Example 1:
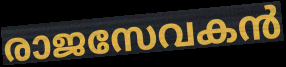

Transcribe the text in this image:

രാജസേവകൻ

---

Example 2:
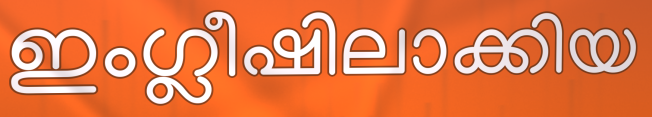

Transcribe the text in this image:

ഇംഗ്ലീഷിലാക്കിയ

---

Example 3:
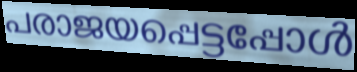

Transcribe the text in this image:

പരാജയപ്പെട്ടപ്പോൾ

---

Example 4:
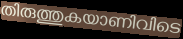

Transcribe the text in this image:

തിരുത്തുകയാണിവിടെ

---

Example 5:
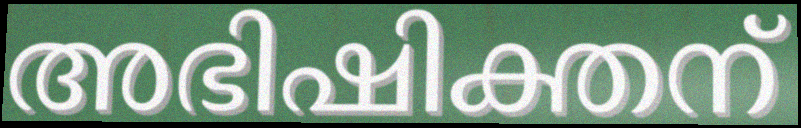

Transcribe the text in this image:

അഭിഷിക്തന്